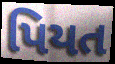
પિયત